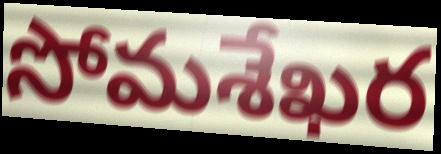
సోమశేఖర